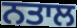
ਨਤਾਲ